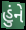
હુંને